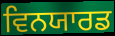
ਵਿਨਯਾਰਡ